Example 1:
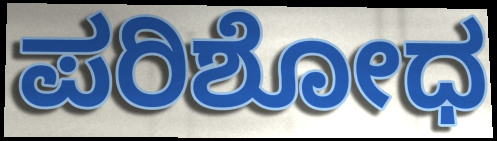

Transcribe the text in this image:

ಪರಿಶೋಧ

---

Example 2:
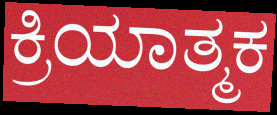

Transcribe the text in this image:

ಕ್ರಿಯಾತ್ಮಕ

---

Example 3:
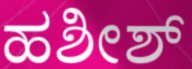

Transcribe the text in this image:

ಹಶೀಶ್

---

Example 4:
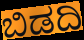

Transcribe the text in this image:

ಬಿಡದಿ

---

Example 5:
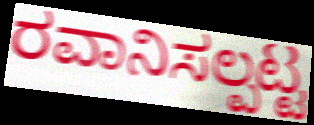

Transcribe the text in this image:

ರವಾನಿಸಲ್ಪಟ್ಟ